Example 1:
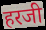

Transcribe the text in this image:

हरजी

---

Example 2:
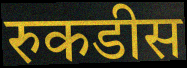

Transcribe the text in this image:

रुकडीस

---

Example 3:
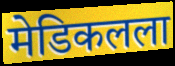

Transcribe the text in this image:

मेडिकलला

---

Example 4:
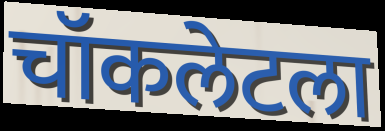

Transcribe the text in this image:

चॉकलेटला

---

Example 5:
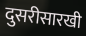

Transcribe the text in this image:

दुसरीसारखी